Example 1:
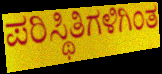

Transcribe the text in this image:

ಪರಿಸ್ಥಿತಿಗಳಿಗಿಂತ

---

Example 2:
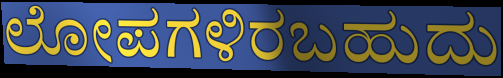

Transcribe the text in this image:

ಲೋಪಗಳಿರಬಹುದು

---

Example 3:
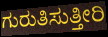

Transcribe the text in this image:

ಗುರುತಿಸುತ್ತೀರಿ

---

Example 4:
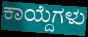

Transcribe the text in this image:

ಕಾಯ್ದೆಗಳು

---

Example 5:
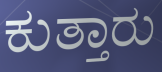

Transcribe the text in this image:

ಕುತ್ತಾರು